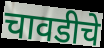
चावडीचे